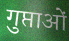
गुप्ताओं